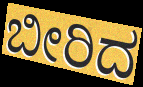
ಬೀರಿದ